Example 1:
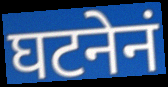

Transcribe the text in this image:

घटनेनं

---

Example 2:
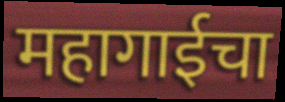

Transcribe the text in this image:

महागाईचा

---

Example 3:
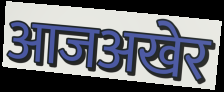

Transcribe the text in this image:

आजअखेर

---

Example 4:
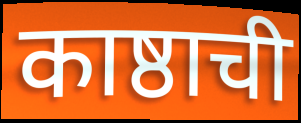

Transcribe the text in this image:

काष्ठाची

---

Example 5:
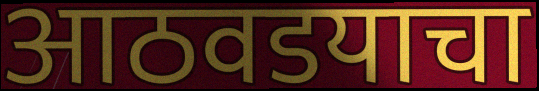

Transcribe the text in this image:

आठवडयाचा